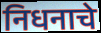
निधनाचे